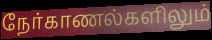
நேர்காணல்களிலும்